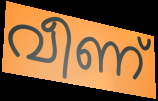
വീണ്